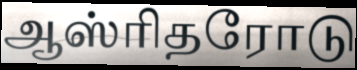
ஆஸ்ரிதரோடு